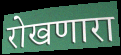
रोखणारा